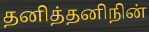
தனித்தனிநின்